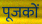
पूजकों